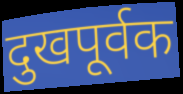
दुखपूर्वक